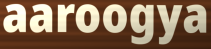
aaroogya